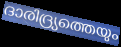
ദാരിദ്ര്യത്തെയും